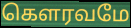
கௌரவமே